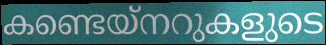
കണ്ടെയ്നറുകളുടെ